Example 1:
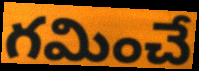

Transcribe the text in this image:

గమించే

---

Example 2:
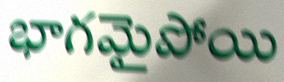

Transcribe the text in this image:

భాగమైపోయి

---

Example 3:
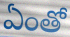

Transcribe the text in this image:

ఏంతో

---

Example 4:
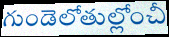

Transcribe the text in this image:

గుండెలోతుల్లోంచీ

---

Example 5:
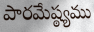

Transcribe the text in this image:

పారమేష్ఠ్యము